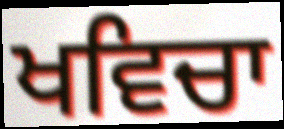
ਖਵਿਚਾ